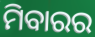
ମିବାରର